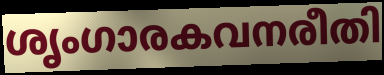
ശൃംഗാരകവനരീതി